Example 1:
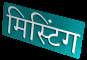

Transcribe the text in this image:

मिस्टिंग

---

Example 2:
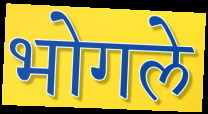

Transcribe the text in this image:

भोगले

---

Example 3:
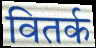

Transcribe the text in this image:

वितर्क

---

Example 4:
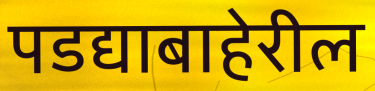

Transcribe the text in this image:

पडद्याबाहेरील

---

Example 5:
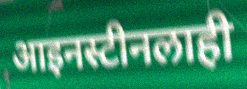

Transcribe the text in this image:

आइनस्टीनलाही